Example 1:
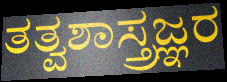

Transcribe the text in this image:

ತತ್ವಶಾಸ್ತ್ರಜ್ಞರ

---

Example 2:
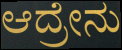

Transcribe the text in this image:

ಆದ್ರೇನು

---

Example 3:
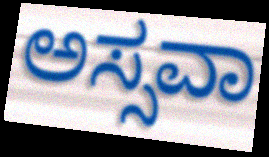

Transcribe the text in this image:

ಅಸ್ಸವಾ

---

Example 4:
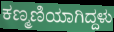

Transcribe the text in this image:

ಕಣ್ಮಣಿಯಾಗಿದ್ದಳು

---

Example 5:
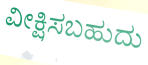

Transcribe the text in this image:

ವೀಕ್ಷಿಸಬಹುದು